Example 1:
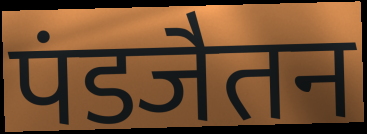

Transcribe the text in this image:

पंडजैतन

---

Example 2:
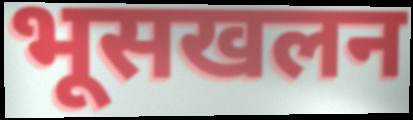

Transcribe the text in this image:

भूसखलन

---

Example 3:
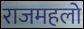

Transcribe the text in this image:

राजमहलो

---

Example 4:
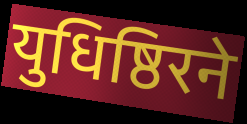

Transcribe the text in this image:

युधिष्ठिरने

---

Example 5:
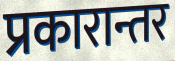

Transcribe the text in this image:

प्रकारान्तर